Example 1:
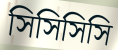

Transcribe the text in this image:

সিসিসিসি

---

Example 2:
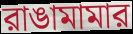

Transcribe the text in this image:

রাঙামামার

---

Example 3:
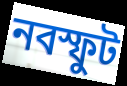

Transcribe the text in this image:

নবস্ফুট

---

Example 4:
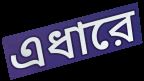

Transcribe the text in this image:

এধারে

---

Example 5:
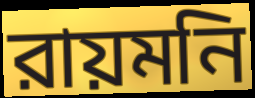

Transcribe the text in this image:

রায়মনি